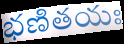
భణితయః